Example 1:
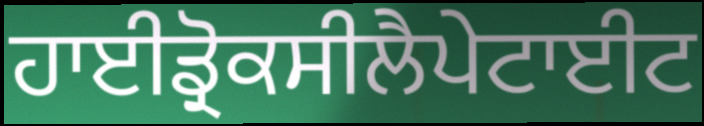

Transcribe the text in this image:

ਹਾਈਡ੍ਰੋਕਸੀਲੈਪੇਟਾਈਟ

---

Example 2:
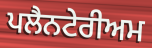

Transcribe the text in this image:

ਪਲੈਨਟੇਰੀਅਮ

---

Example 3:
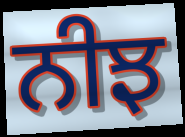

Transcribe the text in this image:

ਨੀਝ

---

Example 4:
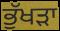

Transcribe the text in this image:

ਭੁੱਖੜਾ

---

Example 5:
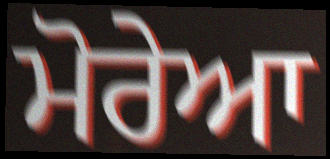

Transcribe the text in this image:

ਮੋਰੇਆ